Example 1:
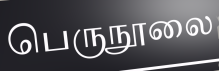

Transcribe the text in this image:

பெருநூலை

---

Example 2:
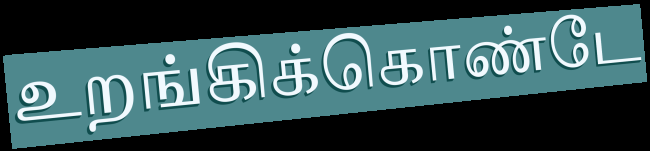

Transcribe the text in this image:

உறங்கிக்கொண்டே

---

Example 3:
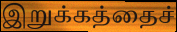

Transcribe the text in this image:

இறுக்கத்தைச்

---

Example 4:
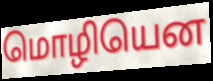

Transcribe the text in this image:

மொழியென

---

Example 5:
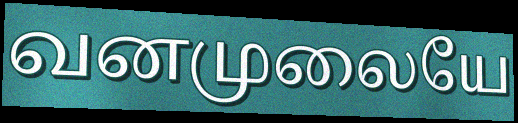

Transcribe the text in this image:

வனமுலையே